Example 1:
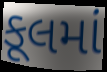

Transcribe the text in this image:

કૂલમાં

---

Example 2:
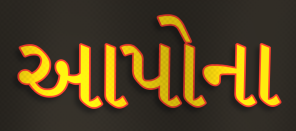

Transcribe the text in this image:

આપોના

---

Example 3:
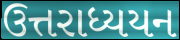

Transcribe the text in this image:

ઉત્તરાધ્યયન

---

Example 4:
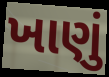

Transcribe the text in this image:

ખાણું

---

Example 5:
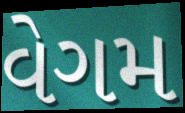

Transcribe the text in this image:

વેગમ